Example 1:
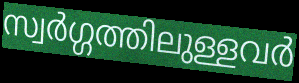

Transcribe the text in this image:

സ്വർഗ്ഗത്തിലുള്ളവർ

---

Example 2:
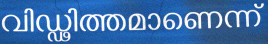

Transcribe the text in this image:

വിഡ്ഢിത്തമാണെന്ന്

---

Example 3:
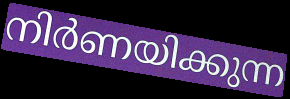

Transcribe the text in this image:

നിർണയിക്കുന്ന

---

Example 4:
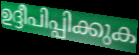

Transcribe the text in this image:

ഉദ്ദീപിപ്പിക്കുക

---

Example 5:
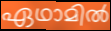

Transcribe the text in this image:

ഏഥാമിൽ